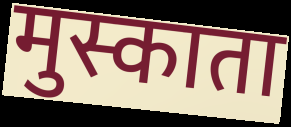
मुस्काता